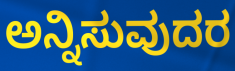
ಅನ್ನಿಸುವುದರ